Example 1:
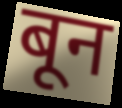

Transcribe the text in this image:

बून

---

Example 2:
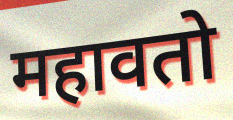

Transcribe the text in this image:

महावतो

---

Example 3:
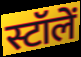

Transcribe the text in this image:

स्टॉलें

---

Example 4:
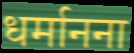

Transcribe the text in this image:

धर्मानना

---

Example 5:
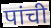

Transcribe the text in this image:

पांची